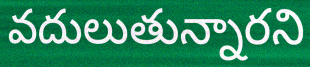
వదులుతున్నారని